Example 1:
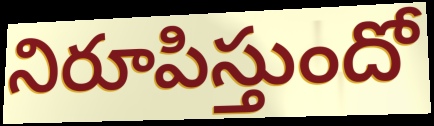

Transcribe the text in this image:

నిరూపిస్తుందో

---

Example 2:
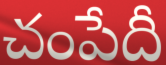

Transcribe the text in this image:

చంపేదీ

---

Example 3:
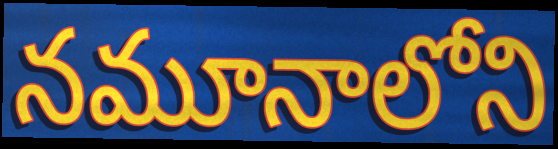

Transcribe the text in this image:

నమూనాలోని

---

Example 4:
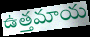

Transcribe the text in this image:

ఉత్తమాయ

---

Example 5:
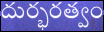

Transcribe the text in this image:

దుర్భరత్వం